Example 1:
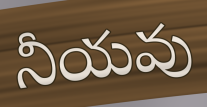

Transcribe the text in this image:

నీయవు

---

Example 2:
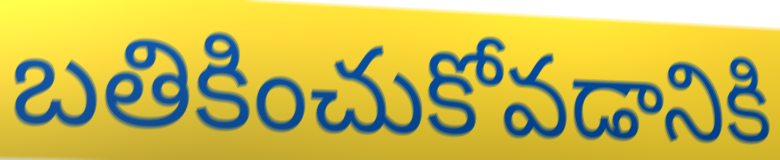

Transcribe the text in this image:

బతికించుకోవడానికి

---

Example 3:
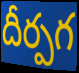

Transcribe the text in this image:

దీర్పగ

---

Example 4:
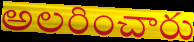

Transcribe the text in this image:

అలరించారు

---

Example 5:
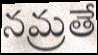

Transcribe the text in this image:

నమ్రతే